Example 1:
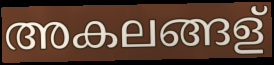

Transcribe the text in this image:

അകലങ്ങള്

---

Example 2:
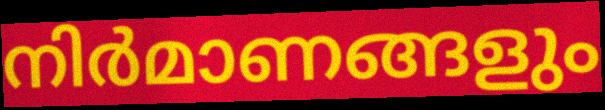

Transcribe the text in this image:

നിർമാണങ്ങളും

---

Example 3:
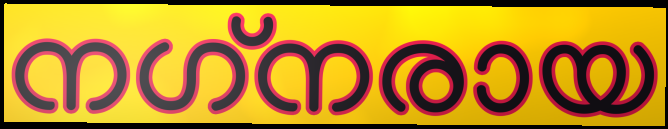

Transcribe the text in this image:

നഗ്‌നരായ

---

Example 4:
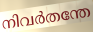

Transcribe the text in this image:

നിവർതന്തേ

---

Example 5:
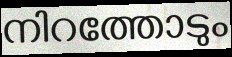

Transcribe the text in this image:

നിറത്തോടും